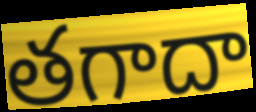
తగాదా